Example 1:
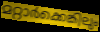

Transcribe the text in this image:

മറ്റാർക്കെങ്കിലും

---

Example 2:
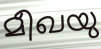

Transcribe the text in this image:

മീഖയു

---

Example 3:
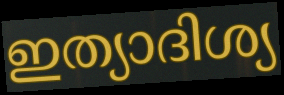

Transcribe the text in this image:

ഇത്യാദിശ്യ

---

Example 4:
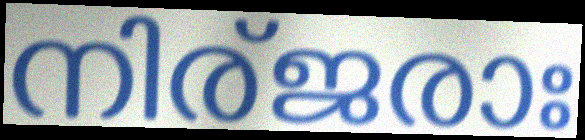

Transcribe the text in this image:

നിര്ജരാഃ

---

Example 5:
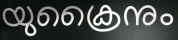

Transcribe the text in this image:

യുക്രൈനും